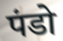
पंडो